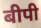
बीपी